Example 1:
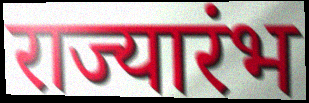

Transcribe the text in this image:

राज्यारंभ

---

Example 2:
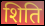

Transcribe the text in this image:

शिति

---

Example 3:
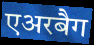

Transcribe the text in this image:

एअरबैग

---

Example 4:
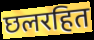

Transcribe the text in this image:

छलरहित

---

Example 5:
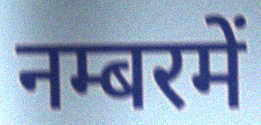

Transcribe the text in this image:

नम्बरमें